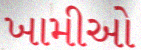
ખામીઓ